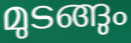
മുടങ്ങും